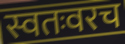
स्वतःवरच